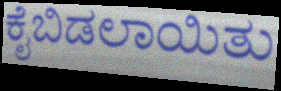
ಕೈಬಿಡಲಾಯಿತು